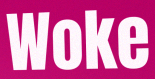
Woke